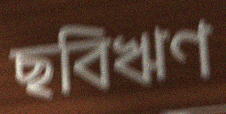
ছবিঋণ